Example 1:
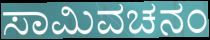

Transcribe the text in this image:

ಸಾಮಿವಚನಂ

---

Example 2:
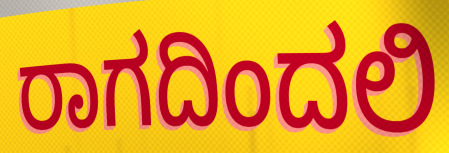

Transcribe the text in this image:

ರಾಗದಿಂದಲಿ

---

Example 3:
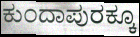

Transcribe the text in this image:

ಕುಂದಾಪುರಕ್ಕೂ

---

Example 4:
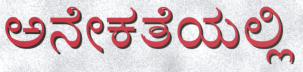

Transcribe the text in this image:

ಅನೇಕತೆಯಲ್ಲಿ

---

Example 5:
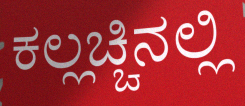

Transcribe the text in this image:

ಕಲ್ಲಚ್ಚಿನಲ್ಲಿ